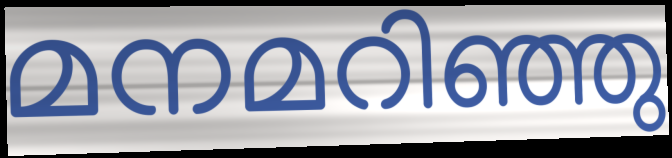
മനമറിഞ്ഞു